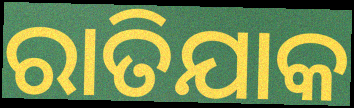
ରାତିଯାକ